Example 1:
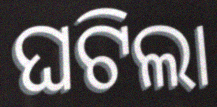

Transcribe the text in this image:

ଘଟିଲା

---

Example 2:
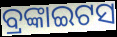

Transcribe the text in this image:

ବ୍ରଙ୍କାଇଟସ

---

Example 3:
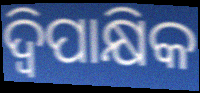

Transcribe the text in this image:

ଦ୍ୱିପାକ୍ଷିକ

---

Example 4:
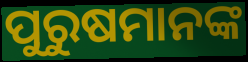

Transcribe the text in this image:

ପୁରୁଷମାନଙ୍କ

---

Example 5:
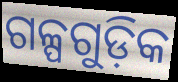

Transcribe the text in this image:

ଗଳ୍ପଗୁଡ଼ିକ